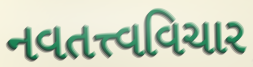
નવતત્ત્વવિચાર